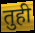
तुही